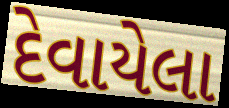
દેવાયેલા